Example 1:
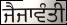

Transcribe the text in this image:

ਜੈਜਾਵੰਤੀ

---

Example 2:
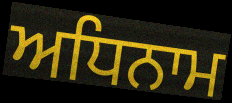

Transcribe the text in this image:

ਅਧਿਨਾਮ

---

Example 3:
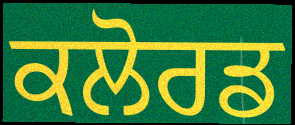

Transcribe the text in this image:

ਕਲੋਰਡ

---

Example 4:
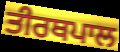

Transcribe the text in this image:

ਤੀਰਥਪਾਲ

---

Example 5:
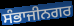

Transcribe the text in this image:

ਸੰਭਾਜੀਨਗਰ